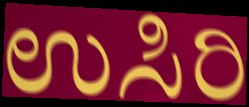
ಉಸಿರಿ